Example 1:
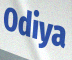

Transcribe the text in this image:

Odiya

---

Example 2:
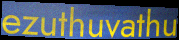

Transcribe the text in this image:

ezuthuvathu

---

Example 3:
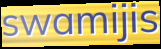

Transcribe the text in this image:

swamijis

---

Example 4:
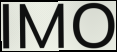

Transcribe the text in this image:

IMO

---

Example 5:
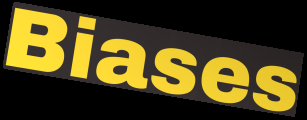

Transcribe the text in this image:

Biases